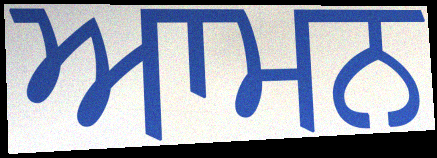
ਆਮਨ